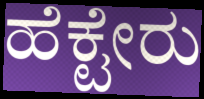
ಹೆಕ್ಟೇರು